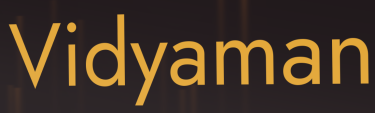
Vidyaman